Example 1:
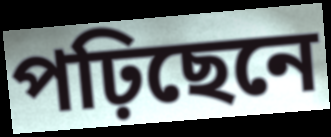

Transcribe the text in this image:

পঢ়িছেনে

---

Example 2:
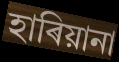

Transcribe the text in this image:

হাৰিয়ানা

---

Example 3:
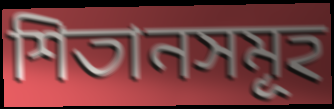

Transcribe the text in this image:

শিতানসমূহ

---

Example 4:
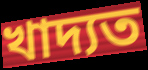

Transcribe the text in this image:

খাদ্যত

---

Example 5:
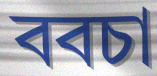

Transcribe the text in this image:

ববচা